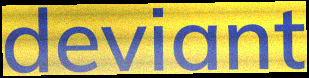
deviant